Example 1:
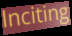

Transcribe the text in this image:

Inciting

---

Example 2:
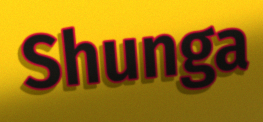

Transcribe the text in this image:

Shunga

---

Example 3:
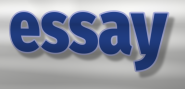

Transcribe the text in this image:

essay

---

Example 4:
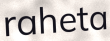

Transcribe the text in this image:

raheta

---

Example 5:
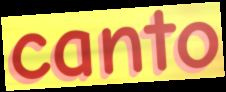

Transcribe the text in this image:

canto